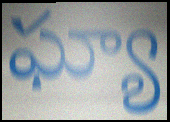
ఘ్యా